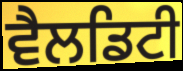
ਵੈਲਡਿਟੀ